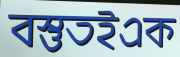
বস্তুতইএক